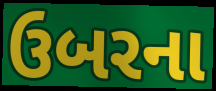
ઉબરના